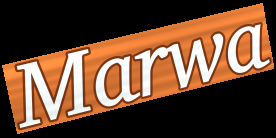
Marwa